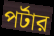
পর্টার